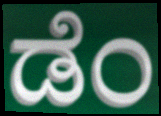
ಡೆಂ